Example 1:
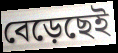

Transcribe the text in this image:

বেড়েছেই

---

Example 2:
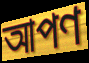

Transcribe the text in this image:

আপণ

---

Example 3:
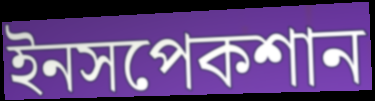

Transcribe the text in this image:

ইনসপেকশান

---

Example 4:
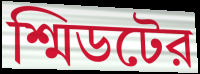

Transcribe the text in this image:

শ্মিডটের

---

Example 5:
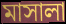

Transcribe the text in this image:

মাসালা